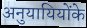
अनुयायियोंके